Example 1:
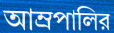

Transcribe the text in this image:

আম্রপালির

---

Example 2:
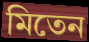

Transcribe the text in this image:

মিতেন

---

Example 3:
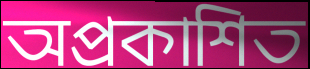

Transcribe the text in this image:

অপ্রকাশিত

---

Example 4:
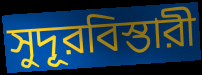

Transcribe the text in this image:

সুদূরবিস্তারী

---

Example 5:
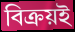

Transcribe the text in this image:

বিক্রয়ই